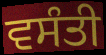
ਵਸੰਤੀ